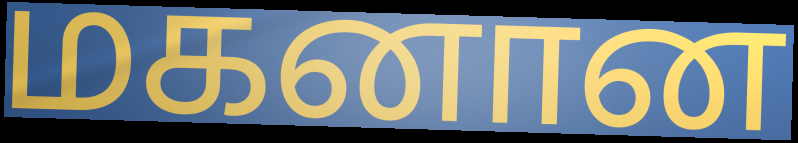
மகனான